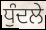
ਧੁੰਦਲੇ